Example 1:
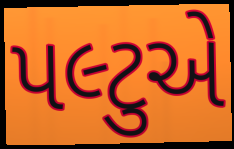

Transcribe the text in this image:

પલ્ટુએ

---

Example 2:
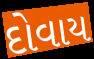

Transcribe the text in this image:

દોવાય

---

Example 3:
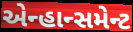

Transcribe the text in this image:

એન્હાન્સમેન્ટ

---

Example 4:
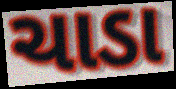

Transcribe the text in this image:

ચાડા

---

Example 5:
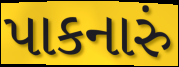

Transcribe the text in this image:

પાકનારું